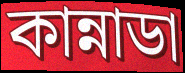
কান্নাডা